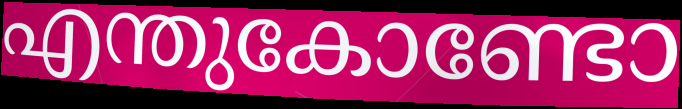
എന്തുകോണ്ടോ